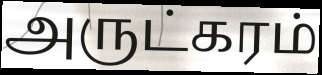
அருட்கரம்